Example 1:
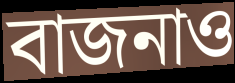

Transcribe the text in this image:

বাজনাও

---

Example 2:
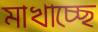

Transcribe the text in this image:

মাখাচ্ছে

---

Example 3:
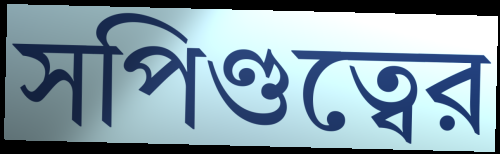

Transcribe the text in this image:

সপিণ্ডত্বের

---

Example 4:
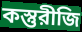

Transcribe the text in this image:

কস্তুরীজি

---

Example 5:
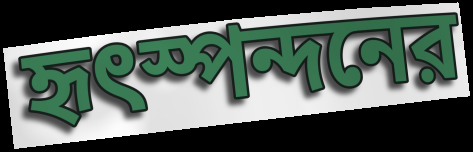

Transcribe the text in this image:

হৃৎস্পন্দনের